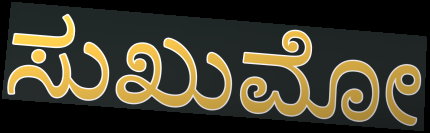
ಸುಖುಮೋ